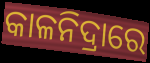
କାଳନିଦ୍ରାରେ